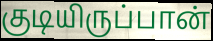
குடியிருப்பான்